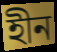
হীন